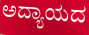
ಅದ್ಯಾಯದ